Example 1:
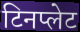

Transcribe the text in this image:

टिनप्लेट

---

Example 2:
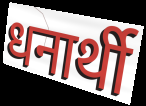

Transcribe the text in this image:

धनार्थी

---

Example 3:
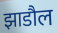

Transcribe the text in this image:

झाडौल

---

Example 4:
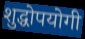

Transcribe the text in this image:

शुद्धोपयोगी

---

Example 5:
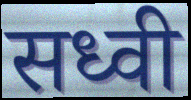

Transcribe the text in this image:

सध्वी